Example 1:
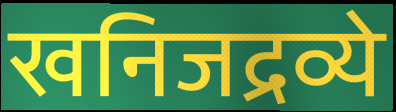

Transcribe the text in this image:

खनिजद्रव्ये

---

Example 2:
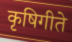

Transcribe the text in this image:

कृषिगीते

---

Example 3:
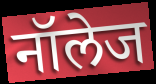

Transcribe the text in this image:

नॉलेज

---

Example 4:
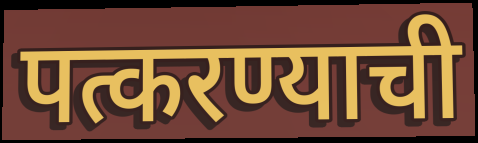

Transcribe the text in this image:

पत्करण्याची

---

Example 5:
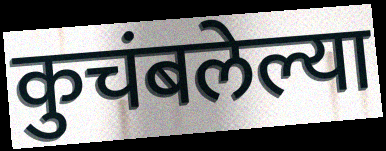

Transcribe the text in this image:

कुचंबलेल्या